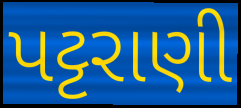
પટ્ટરાણી